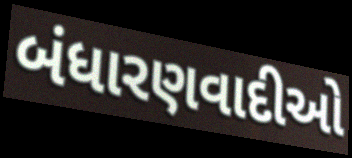
બંધારણવાદીઓ